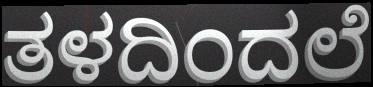
ತಳದಿಂದಲೆ